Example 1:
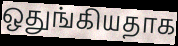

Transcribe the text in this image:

ஒதுங்கியதாக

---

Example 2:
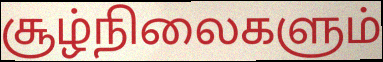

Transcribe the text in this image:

சூழ்நிலைகளும்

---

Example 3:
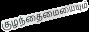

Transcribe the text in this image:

குழந்தைமையையும்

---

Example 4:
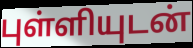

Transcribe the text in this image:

புள்ளியுடன்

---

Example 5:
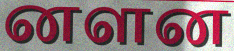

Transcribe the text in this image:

னளன